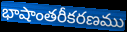
భాషాంతరీకరణము